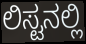
ಲಿಸ್ಟನಲ್ಲಿ